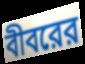
বীবরের